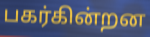
பகர்கின்றன